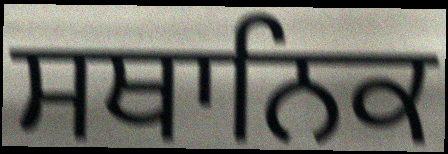
ਸਥਾਨਿਕ